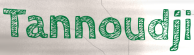
Tannoudji